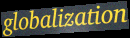
globalization